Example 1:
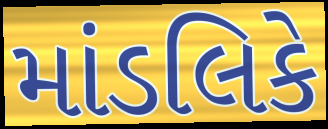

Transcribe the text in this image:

માંડલિકે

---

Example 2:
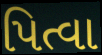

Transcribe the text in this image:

પિત્વા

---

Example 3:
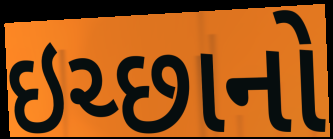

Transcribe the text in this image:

ઇચ્છાનો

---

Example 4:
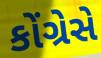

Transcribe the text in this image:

કોંગ્રેસે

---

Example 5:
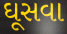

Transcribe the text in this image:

ઘૂસવા